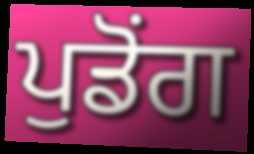
ਪੁਡੋਂਗ